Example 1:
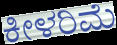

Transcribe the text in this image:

ಕೀಳರಿಮೆ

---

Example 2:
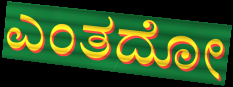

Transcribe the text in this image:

ಎಂತದೋ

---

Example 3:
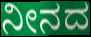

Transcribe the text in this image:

ನೀನದ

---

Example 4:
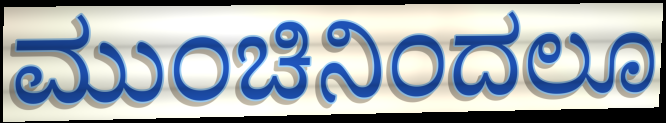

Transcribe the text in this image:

ಮುಂಚಿನಿಂದಲೂ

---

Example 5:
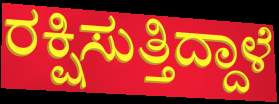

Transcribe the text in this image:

ರಕ್ಷಿಸುತ್ತಿದ್ದಾಳೆ